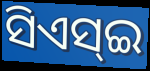
ସିଏସ୍ଇ